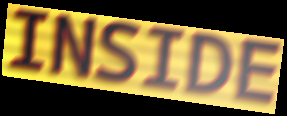
INSIDE